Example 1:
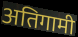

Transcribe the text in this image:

अतिगामी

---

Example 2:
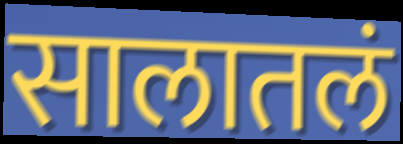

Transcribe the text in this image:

सालातलं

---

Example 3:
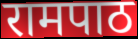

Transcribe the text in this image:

रामपाठ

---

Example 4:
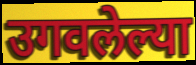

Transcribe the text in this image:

उगवलेल्या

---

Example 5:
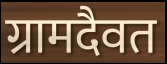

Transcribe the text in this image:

ग्रामदैवत